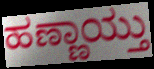
ಹಣ್ಣಾಯ್ತು